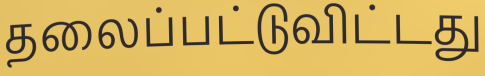
தலைப்பட்டுவிட்டது